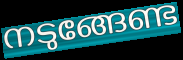
നടുങ്ങേണ്ട